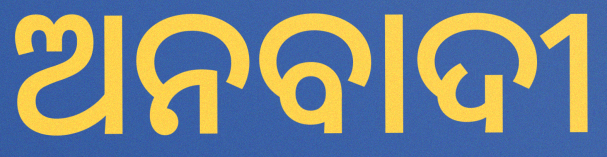
ଅନବାଦୀ